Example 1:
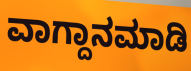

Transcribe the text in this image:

ವಾಗ್ದಾನಮಾಡಿ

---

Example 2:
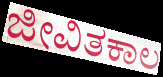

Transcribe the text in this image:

ಜೀವಿತಕಾಲ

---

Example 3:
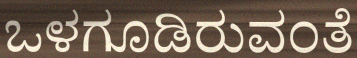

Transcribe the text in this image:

ಒಳಗೂಡಿರುವಂತೆ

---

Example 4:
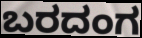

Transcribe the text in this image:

ಬರದಂಗ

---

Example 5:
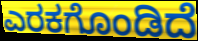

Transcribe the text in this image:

ಎರಕಗೊಂಡಿದೆ